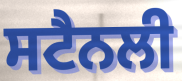
ਸਟੈਨਲੀ